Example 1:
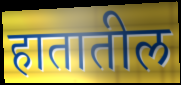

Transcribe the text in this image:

हातातील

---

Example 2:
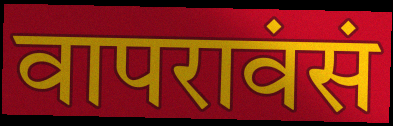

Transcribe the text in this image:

वापरावंसं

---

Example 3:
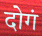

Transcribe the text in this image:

दोगं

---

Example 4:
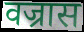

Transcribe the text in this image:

वज्रास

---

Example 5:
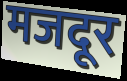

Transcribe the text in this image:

मजदूर